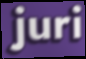
juri